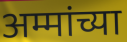
अम्मांच्या